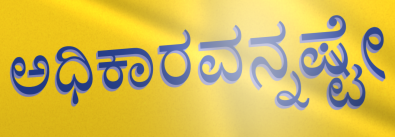
ಅಧಿಕಾರವನ್ನಷ್ಟೇ